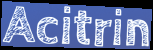
Acitrin